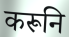
करूनि